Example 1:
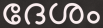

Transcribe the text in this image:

ദേശം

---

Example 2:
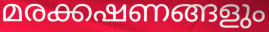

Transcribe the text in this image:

മരക്കഷണങ്ങളും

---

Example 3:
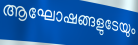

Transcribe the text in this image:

ആഘോഷങ്ങളുടേയും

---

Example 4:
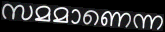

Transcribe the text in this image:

സമമാണെന്ന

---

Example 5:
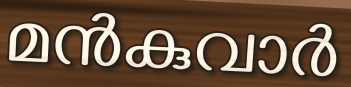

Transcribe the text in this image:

മൻകുവാർ